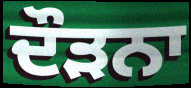
ਦੌੜਨਾ